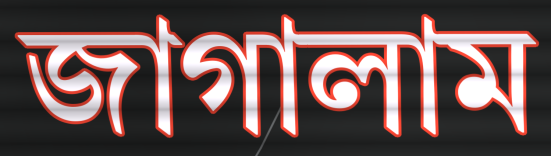
জাগালাম